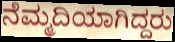
ನೆಮ್ಮದಿಯಾಗಿದ್ದರು